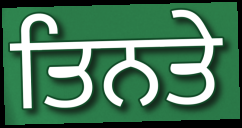
ਤਿਨਤੇ